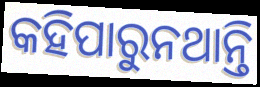
କହିପାରୁନଥାନ୍ତି